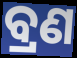
ବ୍ରଣ